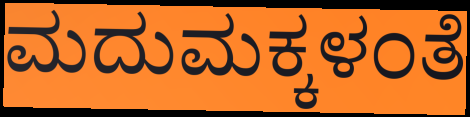
ಮದುಮಕ್ಕಳಂತೆ